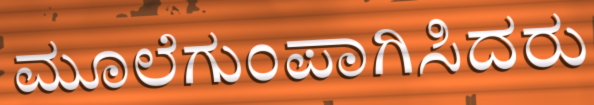
ಮೂಲೆಗುಂಪಾಗಿಸಿದರು